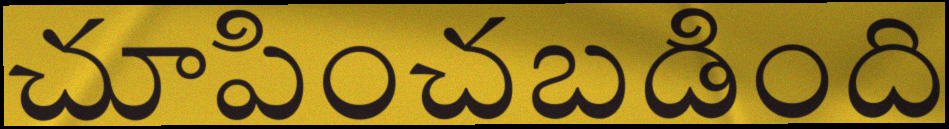
చూపించబడింది